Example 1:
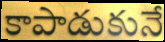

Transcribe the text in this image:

కాపాడుకునే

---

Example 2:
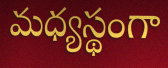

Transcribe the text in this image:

మధ్యస్థంగా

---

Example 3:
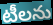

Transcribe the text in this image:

టీలను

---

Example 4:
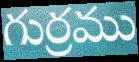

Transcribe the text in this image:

గుర్రము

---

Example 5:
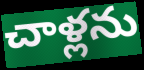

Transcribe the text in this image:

చాళ్లను